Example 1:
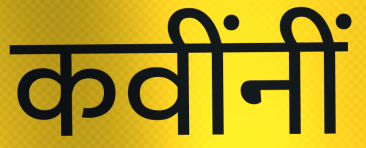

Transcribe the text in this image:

कवींनीं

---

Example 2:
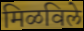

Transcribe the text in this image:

मिळविले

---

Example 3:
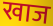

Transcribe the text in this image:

खाज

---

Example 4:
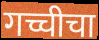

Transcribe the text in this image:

गच्चीचा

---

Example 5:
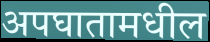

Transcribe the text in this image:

अपघातामधील